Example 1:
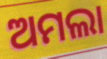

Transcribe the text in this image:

ଅମଲା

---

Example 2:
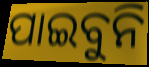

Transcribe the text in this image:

ପାଇବୁନି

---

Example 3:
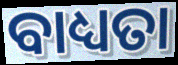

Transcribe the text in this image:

ବାଧ୍ୟତା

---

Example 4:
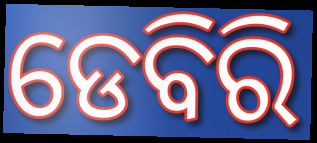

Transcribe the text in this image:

ଡେବିରି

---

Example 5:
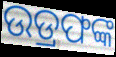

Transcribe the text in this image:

ଉଡ୍ରଫଙ୍କ